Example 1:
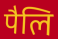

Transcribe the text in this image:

पैलि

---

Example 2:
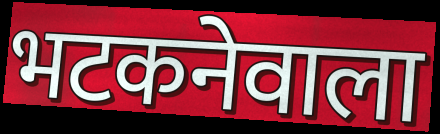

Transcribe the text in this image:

भटकनेवाला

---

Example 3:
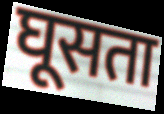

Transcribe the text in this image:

घूसता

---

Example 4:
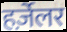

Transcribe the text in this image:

हर्ज़ेलर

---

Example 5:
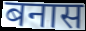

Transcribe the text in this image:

बनास